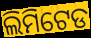
ଲିମିଟେଡ